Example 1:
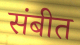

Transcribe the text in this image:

संबीत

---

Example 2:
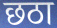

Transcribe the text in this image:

छठा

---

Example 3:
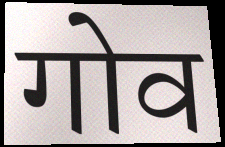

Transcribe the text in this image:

गोव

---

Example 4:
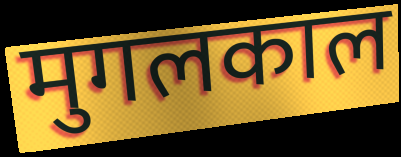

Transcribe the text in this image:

मुगलकाल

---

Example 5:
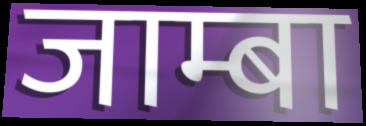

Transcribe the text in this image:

जाम्बा